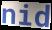
nid